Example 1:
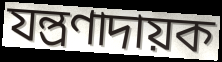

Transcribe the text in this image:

যন্ত্ৰণাদায়ক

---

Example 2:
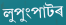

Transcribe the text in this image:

লুপুংপাটৰ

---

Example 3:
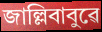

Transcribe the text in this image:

জাল্লিবাবুৱে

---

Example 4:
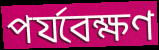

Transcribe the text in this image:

পৰ্যবেক্ষণ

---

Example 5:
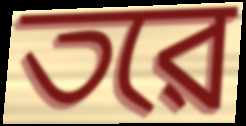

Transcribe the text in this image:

তৱে